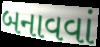
બનાવવાં